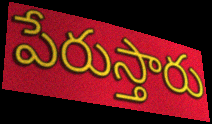
పేరుస్తారు